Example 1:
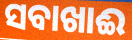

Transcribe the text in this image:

ସବାଖାଈ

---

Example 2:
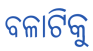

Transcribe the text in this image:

ବଳାଟିକୁ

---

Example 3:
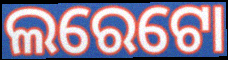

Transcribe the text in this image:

ଲରେଟୋ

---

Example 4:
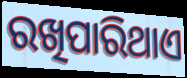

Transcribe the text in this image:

ରଖିପାରିଥାଏ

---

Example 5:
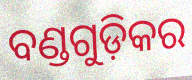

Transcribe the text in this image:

ବଣ୍ଡଗୁଡ଼ିକର